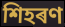
শিহৰণ